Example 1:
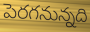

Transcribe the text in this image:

పెరగనున్నది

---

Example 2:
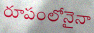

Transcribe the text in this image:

రూపంలోనైనా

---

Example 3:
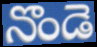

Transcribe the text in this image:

నొండె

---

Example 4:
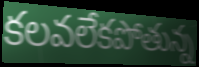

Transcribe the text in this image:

కలవలేకపోతున్న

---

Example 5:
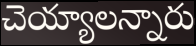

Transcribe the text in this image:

చెయ్యాలన్నారు